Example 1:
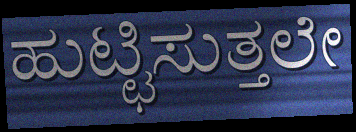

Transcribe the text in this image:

ಹುಟ್ಟಿಸುತ್ತಲೇ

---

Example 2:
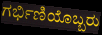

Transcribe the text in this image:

ಗರ್ಭಿಣಿಯೊಬ್ಬರು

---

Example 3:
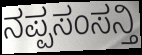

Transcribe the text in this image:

ನಪ್ಪಸಂಸನ್ತಿ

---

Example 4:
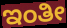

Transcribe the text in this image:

ಇಂತೀ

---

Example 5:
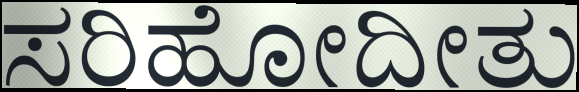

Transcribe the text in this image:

ಸರಿಹೋದೀತು